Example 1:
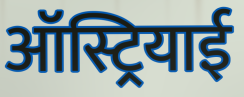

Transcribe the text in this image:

ऑस्ट्रियाई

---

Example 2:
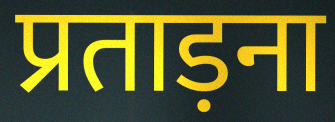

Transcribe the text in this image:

प्रताड़ना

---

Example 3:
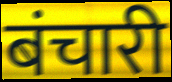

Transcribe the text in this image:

बंचारी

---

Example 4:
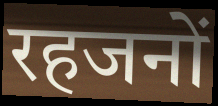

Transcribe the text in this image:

रहजनों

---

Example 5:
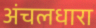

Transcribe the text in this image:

अंचलधारा